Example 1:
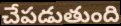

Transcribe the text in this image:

చేపడుతుంది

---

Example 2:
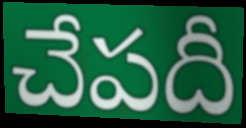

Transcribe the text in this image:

చేపదీ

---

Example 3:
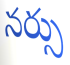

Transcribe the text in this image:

నర్సు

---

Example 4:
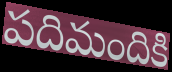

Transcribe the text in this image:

పదిమందికి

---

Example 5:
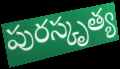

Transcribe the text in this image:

పురస్కృత్య